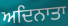
ਅਦਿਨਾਤਾ